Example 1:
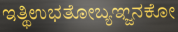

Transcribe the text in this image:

ಇತ್ಥಿಉಭತೋಬ್ಯಞ್ಜನಕೋ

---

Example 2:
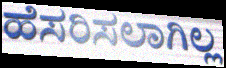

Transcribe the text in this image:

ಹೆಸರಿಸಲಾಗಿಲ್ಲ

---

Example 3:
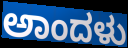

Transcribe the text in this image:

ಅಾಂದಳು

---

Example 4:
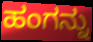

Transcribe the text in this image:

ಹಂಗನ್ನು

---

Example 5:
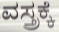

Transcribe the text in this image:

ವಸ್ತ್ರಕ್ಕೆ